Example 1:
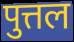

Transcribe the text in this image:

पुत्तल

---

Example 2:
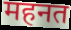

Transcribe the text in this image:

महनत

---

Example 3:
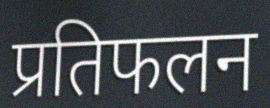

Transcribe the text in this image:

प्रतिफलन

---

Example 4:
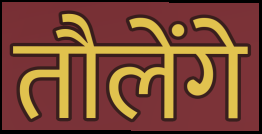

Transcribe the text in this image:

तौलेंगे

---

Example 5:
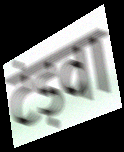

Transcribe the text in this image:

टंड़वा